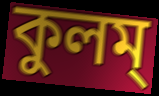
কুলম্